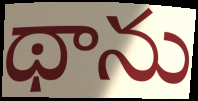
థాను